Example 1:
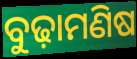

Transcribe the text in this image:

ବୁଢ଼ାମଣିଷ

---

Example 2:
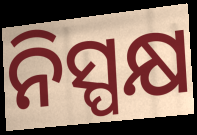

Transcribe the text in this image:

ନିସ୍ପକ୍ଷ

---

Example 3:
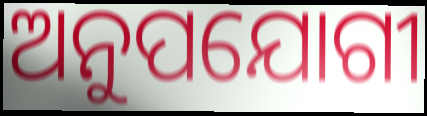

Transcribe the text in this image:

ଅନୁପଯୋଗୀ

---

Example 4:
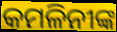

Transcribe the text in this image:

କମଳିନୀଙ୍କ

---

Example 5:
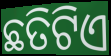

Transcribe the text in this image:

ଛତିଟିଏ